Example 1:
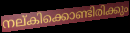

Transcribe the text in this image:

നല്കിക്കൊണ്ടിരിക്കും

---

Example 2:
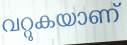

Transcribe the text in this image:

വറ്റുകയാണ്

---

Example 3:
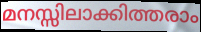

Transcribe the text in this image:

മനസ്സിലാക്കിത്തരാം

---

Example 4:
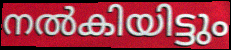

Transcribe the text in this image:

നൽകിയിട്ടും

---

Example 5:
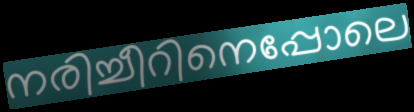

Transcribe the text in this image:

നരിച്ചീറിനെപ്പോലെ